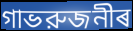
গাভৰুজনীৰ